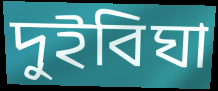
দুইবিঘা